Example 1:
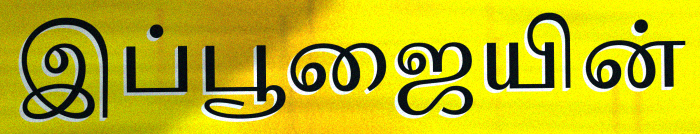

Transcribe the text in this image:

இப்பூஜையின்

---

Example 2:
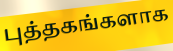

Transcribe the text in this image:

புத்தகங்களாக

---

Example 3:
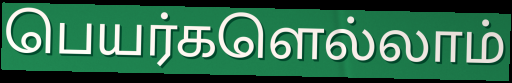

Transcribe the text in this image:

பெயர்களெல்லாம்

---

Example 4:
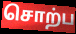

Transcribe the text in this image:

சொற்ப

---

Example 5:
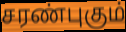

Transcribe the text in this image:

சரண்புகும்